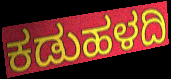
ಕಡುಹಳದಿ